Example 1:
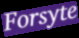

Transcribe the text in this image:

Forsyte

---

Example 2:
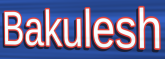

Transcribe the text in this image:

Bakulesh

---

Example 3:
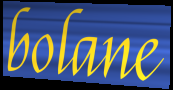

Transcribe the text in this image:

bolane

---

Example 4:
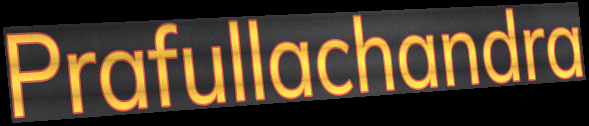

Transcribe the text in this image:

Prafullachandra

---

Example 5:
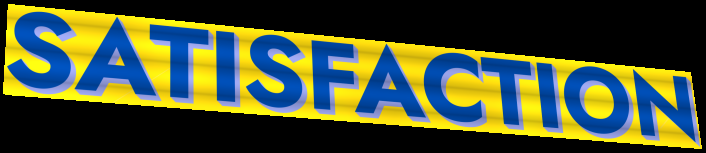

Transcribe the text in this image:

SATISFACTION